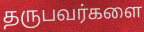
தருபவர்களை